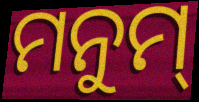
ମନୁମ୍